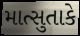
માત્સુતાકે